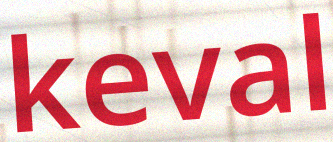
keval